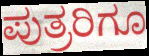
ಪುತ್ರರಿಗೂ